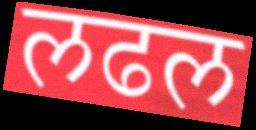
लढल